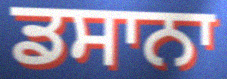
ਡਸਾਨਾ